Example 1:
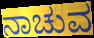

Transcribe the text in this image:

ನಾಚುವ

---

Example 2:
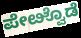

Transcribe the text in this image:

ಪೇೞ್ವೊಡೆ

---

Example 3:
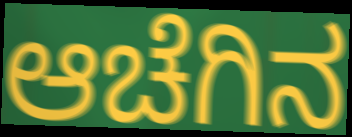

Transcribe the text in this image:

ಆಚೆಗಿನ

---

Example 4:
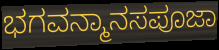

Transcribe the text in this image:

ಭಗವನ್ಮಾನಸಪೂಜಾ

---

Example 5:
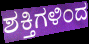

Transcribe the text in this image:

ಶಕ್ತಿಗಳಿಂದ